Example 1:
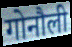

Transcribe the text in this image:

गोनौली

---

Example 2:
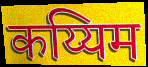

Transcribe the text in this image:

कय्यिम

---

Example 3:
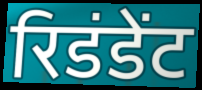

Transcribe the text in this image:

रिडंडेंट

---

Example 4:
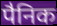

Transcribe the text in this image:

पैनिक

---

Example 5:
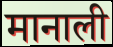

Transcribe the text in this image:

मानाली